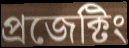
প্রজেক্টিং